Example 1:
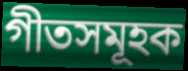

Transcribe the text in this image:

গীতসমূহক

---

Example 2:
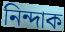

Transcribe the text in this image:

নিন্দাক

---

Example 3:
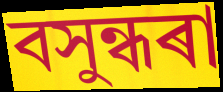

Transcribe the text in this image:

বসুন্ধৰা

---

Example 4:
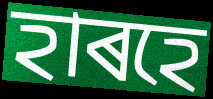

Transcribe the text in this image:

হাৰহে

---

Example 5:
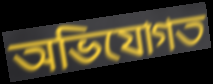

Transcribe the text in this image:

অভিযোগত